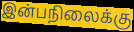
இன்பநிலைக்கு